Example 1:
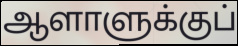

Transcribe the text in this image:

ஆளாளுக்குப்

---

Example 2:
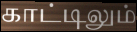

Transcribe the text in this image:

காட்டிலும்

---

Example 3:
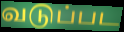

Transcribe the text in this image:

வடுப்பட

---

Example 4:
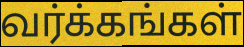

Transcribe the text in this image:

வர்க்கங்கள்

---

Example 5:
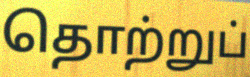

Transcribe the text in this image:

தொற்றுப்